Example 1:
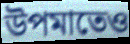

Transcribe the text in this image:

উপমাতেও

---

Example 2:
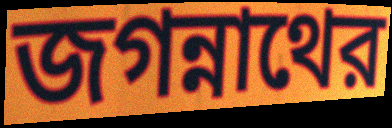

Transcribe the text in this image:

জগন্নাথের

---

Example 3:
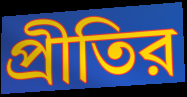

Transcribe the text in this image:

প্রীতির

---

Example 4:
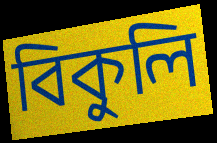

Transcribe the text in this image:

বিকুলি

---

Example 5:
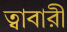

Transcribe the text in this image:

ত্বাবারী